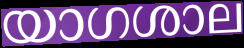
യാഗശാല